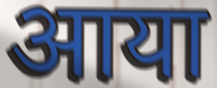
आया